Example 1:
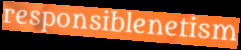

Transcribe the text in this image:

responsiblenetism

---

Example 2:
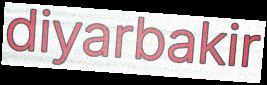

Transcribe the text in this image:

diyarbakir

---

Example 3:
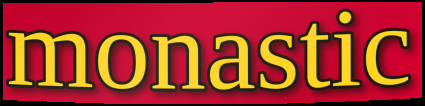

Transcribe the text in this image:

monastic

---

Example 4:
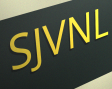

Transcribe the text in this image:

SJVNL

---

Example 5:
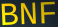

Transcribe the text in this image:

BNF